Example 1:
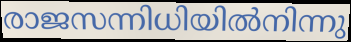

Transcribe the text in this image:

രാജസന്നിധിയിൽനിന്നു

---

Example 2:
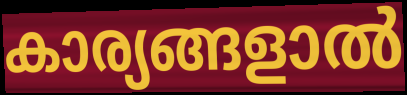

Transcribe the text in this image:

കാര്യങ്ങളാൽ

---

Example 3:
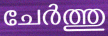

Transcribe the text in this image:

ചേർത്തു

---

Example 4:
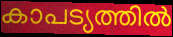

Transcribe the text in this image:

കാപട്യത്തിൽ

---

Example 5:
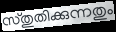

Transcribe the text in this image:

സ്തുതിക്കുന്നതും